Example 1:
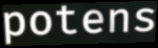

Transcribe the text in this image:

potens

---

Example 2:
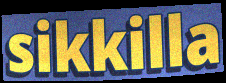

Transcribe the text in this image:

sikkilla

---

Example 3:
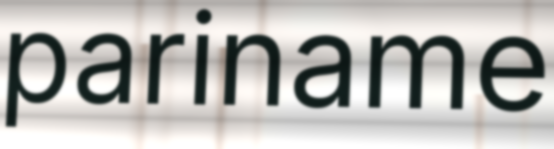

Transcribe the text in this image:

pariname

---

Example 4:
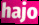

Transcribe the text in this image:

hajo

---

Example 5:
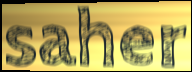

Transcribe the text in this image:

saher